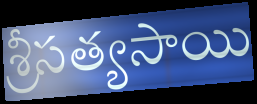
శ్రీసత్యసాయి